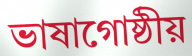
ভাষাগোষ্ঠীয়